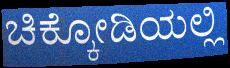
ಚಿಕ್ಕೋಡಿಯಲ್ಲಿ